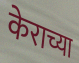
केराच्या